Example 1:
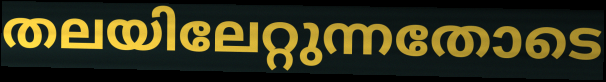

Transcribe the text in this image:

തലയിലേറ്റുന്നതോടെ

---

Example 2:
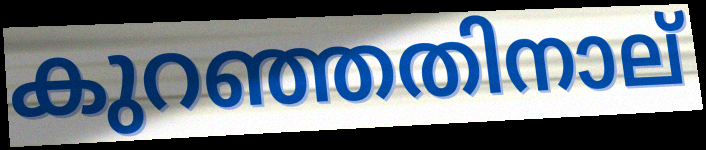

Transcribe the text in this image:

കുറഞ്ഞതിനാല്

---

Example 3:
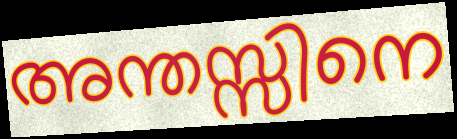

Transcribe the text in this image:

അന്തസ്സിനെ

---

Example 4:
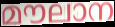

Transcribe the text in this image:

മൗലാന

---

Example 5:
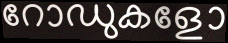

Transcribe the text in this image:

റോഡുകളോ